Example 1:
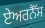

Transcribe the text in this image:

ਏਅਰਨੈੱਸ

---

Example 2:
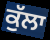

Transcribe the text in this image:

ਕੁੱਲਾ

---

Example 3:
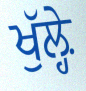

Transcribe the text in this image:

ਖੁੱਲ਼੍ਹੇ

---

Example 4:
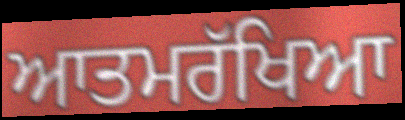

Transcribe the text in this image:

ਆਤਮਰੱਖਿਆ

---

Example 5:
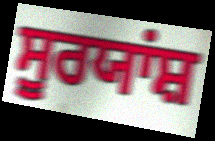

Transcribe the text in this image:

ਸੂਰਯਾਂਸ਼